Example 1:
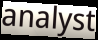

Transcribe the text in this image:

analyst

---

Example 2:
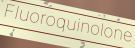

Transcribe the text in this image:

Fluoroquinolone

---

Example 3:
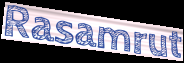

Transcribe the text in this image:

Rasamrut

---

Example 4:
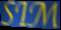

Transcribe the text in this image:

SIM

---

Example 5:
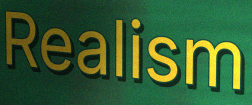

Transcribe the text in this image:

Realism